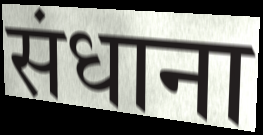
संधाना